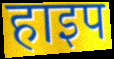
हाइप